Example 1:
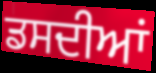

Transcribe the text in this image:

ਡਸਦੀਆਂ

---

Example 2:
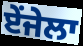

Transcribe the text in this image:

ਏਂਜੇਲਾ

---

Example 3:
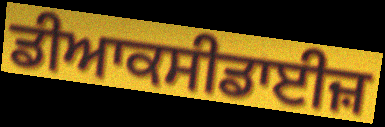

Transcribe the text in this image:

ਡੀਆਕਸੀਡਾਈਜ਼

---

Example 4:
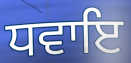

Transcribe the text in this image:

ਧਵਾਇ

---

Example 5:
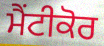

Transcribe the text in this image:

ਮੈਂਟੀਕੋਰ